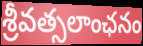
శ్రీవత్సలాంఛనం